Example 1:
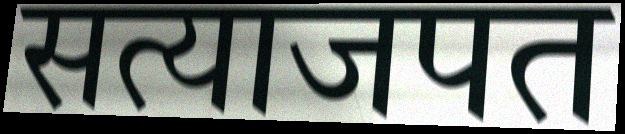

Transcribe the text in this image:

सत्याजपत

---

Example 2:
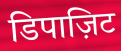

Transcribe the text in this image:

डिपाज़िट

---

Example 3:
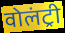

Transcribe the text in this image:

वोलंट्री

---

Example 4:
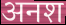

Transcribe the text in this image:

अनश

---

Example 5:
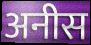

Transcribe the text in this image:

अनीस